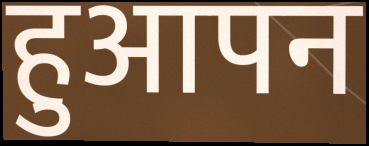
हुआपन